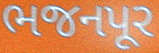
ભજનપૂર